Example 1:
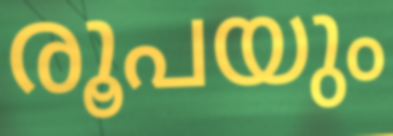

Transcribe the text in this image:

രൂപയും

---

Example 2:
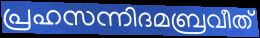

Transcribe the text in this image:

പ്രഹസന്നിദമബ്രവീത്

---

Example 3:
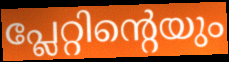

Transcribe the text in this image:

പ്ലേറ്റിന്റെയും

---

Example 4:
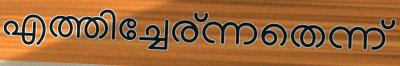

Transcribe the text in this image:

എത്തിച്ചേര്ന്നതെന്ന്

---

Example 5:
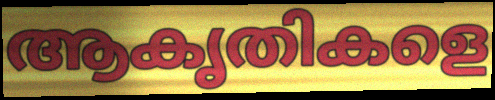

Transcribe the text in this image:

ആകൃതികളെ